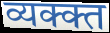
व्यक्क्त